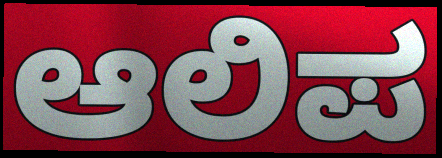
ಆಲಿಪ